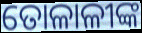
ତୋଳାଳୀଙ୍କ